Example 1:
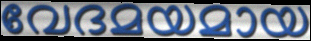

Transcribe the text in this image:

വേദമയമായ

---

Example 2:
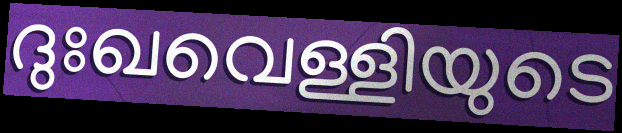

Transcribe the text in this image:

ദുഃഖവെള്ളിയുടെ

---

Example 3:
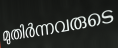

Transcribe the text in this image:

മുതിർന്നവരുടെ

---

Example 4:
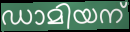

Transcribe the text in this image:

ഡാമിയന്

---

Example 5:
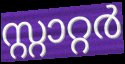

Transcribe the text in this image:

സ്റ്റാറ്റർ